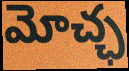
మోచ్ఛ